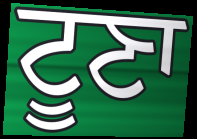
ਟੂਣਾ